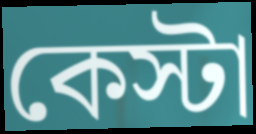
কেস্টা